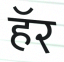
हॅर